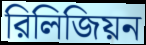
রিলিজিয়ন